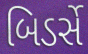
બિડર્સે